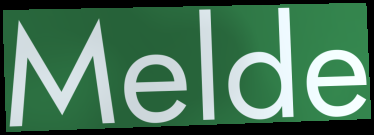
Melde